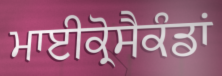
ਮਾਈਕ੍ਰੋਸੈਕੰਡਾਂ